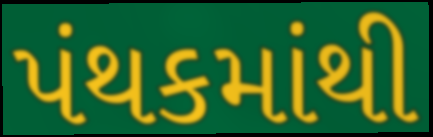
પંથકમાંથી